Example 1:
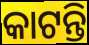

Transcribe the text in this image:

କାଟନ୍ତି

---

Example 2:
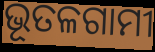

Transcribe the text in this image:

ଭୂତଳଗାମୀ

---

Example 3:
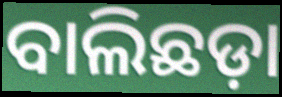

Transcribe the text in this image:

ବାଲିଛଡ଼ା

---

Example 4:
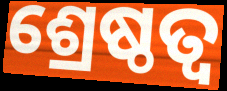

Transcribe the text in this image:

ଶ୍ରେଷ୍ଠତ୍ବ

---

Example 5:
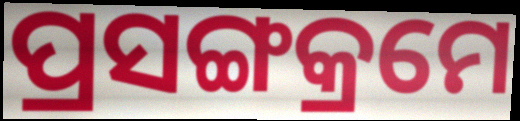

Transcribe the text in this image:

ପ୍ରସଙ୍ଗକ୍ରମେ